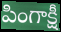
పింగాక్షీ